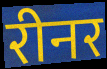
रीनर